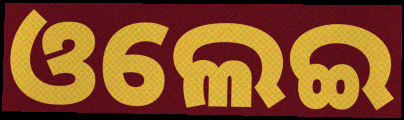
ଓଲେଇ